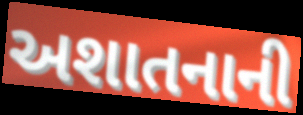
અશાતનાની